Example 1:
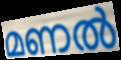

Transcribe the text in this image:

മണൽ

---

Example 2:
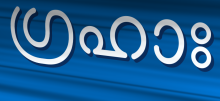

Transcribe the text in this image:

ഗ്രഹാഃ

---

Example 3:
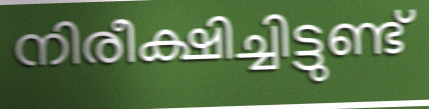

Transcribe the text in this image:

നിരീക്ഷിച്ചിട്ടുണ്ട്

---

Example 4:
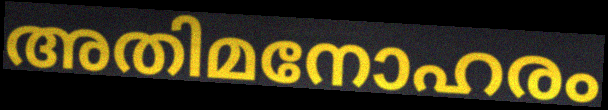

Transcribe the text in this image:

അതിമനോഹരം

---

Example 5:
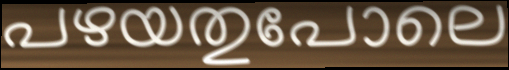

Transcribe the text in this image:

പഴയതുപോലെ